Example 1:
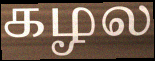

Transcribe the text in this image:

கழல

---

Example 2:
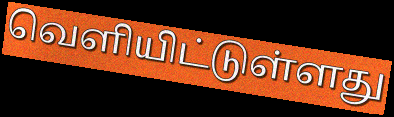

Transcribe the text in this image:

வெளியிட்டுள்ளது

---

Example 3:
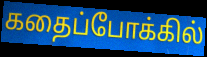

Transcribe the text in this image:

கதைப்போக்கில்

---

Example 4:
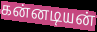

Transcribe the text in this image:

கன்னடியன்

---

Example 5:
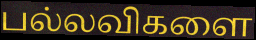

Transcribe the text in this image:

பல்லவிகளை